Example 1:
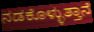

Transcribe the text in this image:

ನಡಕೊಳ್ಳುತ್ತಾನೆ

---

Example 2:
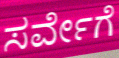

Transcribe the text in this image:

ಸರ್ವೇಗೆ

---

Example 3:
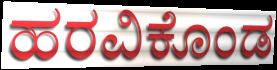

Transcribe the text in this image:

ಹರವಿಕೊಂಡ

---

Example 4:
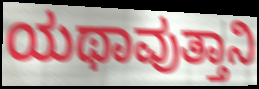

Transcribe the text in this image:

ಯಥಾವುತ್ತಾನಿ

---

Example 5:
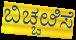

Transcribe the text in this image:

ಬಿಚ್ಚೞಿಸೆ